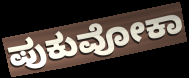
ಪುಕುವೋಕಾ